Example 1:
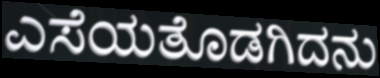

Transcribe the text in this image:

ಎಸೆಯತೊಡಗಿದನು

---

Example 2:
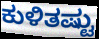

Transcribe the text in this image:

ಕುಳಿತಷ್ಟು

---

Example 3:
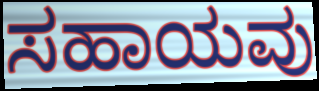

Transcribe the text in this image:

ಸಹಾಯವು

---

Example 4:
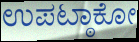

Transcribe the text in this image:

ಉಪಟ್ಠಾಕೋ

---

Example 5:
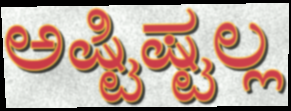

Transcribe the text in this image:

ಅಷ್ಟಿಷ್ಟಲ್ಲ